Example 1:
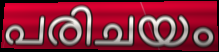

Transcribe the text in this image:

പരിചയം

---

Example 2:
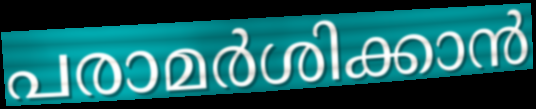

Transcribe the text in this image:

പരാമർശിക്കാൻ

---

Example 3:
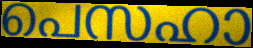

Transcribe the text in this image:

പെസഹാ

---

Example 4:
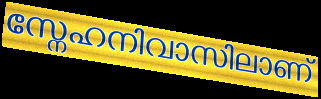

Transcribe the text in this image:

സ്നേഹനിവാസിലാണ്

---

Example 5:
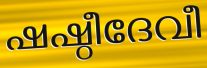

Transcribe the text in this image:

ഷഷ്ഠീദേവീ